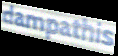
dampathis